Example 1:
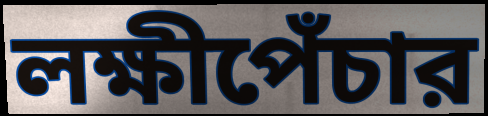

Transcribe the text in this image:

লক্ষীপেঁচার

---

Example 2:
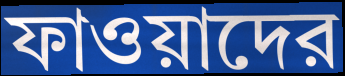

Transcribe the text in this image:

ফাওয়াদের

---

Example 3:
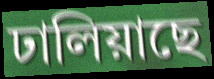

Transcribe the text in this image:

ঢালিয়াছে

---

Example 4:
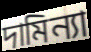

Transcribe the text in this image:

দামিন্যা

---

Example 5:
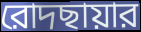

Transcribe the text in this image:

রোদছায়ার